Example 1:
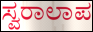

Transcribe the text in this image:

ಸ್ವರಾಲಾಪ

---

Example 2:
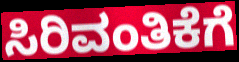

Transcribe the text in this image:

ಸಿರಿವಂತಿಕೆಗೆ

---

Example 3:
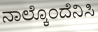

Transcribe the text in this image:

ನಾಲ್ಕೊಂದೆನಿಸಿ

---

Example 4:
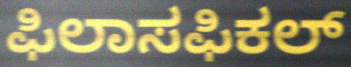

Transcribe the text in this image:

ಫಿಲಾಸಫಿಕಲ್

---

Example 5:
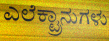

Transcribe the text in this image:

ಎಲೆಕ್ಟ್ರಾನುಗಳು